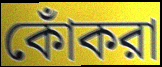
কোঁকরা